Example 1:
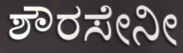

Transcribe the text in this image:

ಶೌರಸೇನೀ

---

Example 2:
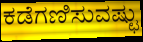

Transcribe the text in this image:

ಕಡೆಗಣಿಸುವಷ್ಟು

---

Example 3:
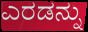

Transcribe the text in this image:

ಎರಡನ್ನು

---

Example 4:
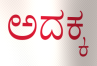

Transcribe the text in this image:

ಅದಕ್ಕ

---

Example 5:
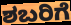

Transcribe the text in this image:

ಶಬರಿಗೆ